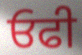
ਓਫੀ